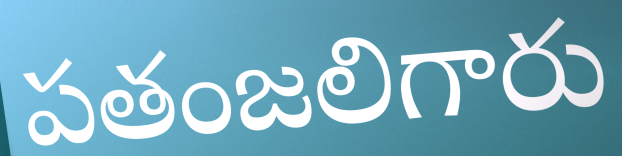
పతంజలిగారు